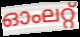
ഓംലറ്റ്